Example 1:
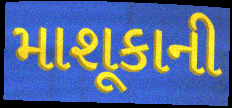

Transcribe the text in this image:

માશૂકાની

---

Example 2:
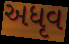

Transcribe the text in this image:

અધૃવ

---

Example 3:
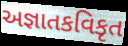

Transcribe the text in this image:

અજ્ઞાતકવિકૃત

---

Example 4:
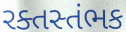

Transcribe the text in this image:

રક્તસ્તંભક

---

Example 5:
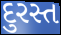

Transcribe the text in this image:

દુરસ્ત